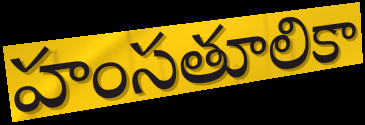
హంసతూలికా